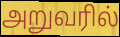
அறுவரில்